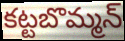
కట్టబొమ్మన్